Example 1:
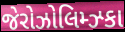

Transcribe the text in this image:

જેરોઝોલિમ્ઝ્કા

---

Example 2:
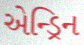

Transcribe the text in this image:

એન્ડ્રિન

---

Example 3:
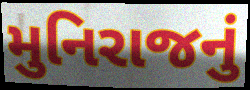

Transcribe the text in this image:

મુનિરાજનું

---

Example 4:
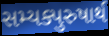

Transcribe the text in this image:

સમ્યક્પુરુષાર્થ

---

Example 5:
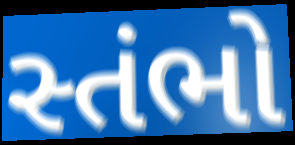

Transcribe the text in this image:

સ્તંભો